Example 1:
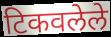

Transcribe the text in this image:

टिकवलेले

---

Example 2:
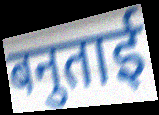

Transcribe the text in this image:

बनुताई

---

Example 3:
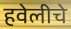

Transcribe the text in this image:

हवेलीचे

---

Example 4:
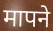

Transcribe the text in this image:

मापने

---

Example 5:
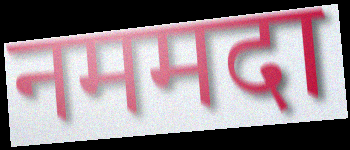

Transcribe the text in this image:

नममदा